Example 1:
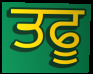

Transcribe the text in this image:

ਤਫੂ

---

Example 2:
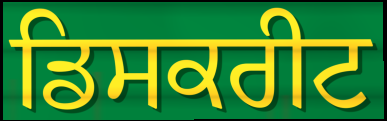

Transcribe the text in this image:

ਡਿਸਕਰੀਟ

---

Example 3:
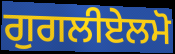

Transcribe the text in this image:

ਗੁਗਲੀਏਲਮੋ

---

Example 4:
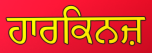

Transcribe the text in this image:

ਹਾਰਕਿਨਜ਼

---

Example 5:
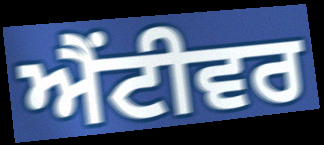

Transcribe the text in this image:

ਐਂਟੀਵਰ